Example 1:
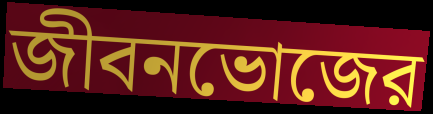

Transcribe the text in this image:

জীবনভোজের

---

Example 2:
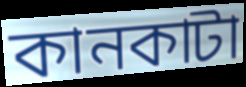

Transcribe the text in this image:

কানকাটা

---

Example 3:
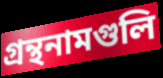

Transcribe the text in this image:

গ্রন্থনামগুলি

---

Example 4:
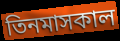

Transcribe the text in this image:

তিনমাসকাল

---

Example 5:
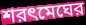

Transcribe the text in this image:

শরৎমেঘের